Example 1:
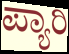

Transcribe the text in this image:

ಪ್ಯಾರಿ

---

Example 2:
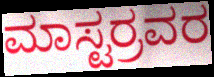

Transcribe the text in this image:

ಮಾಸ್ಟರ್ರವರ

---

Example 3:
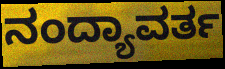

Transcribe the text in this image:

ನಂದ್ಯಾವರ್ತ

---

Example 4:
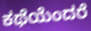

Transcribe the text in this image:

ಕಥೆಯೆಂದರೆ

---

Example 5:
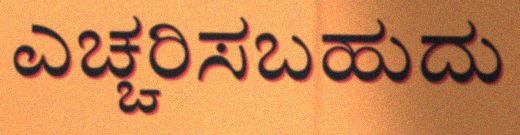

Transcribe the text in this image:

ಎಚ್ಚರಿಸಬಹುದು